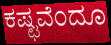
ಕಷ್ಟವೆಂದೂ